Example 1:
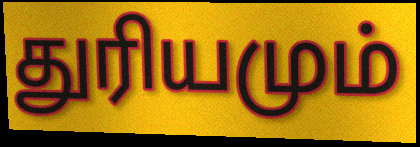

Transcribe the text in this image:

துரியமும்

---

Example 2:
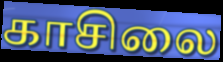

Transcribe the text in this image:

காசிலை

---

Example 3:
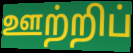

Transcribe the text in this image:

ஊற்றிப்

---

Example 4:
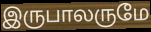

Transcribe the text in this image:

இருபாலருமே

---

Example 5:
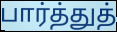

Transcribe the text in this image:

பார்த்துத்